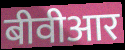
बीवीआर